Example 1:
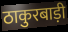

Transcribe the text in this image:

ठाकुरबाड़ी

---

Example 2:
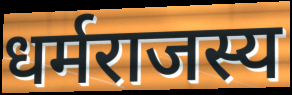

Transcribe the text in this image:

धर्मराजस्य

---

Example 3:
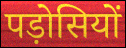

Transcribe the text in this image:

पड़ोसियों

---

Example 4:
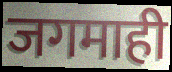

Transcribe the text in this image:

जगमाही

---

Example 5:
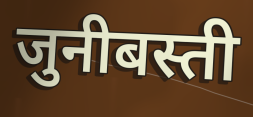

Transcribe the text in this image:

जुनीबस्ती